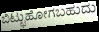
ಬಿಟ್ಟುಹೋಗಬಹುದು